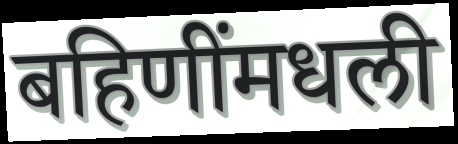
बहिणींमधली